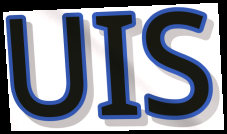
UIS